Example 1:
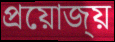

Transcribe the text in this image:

প্ৰয়োজ্য়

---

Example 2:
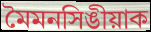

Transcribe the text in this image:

মৈমনসিঙীয়াক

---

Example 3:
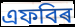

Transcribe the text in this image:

এফবিৰ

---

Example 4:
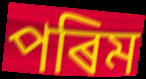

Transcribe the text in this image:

পৰিম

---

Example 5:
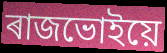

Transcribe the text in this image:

ৰাজভোইয়ে